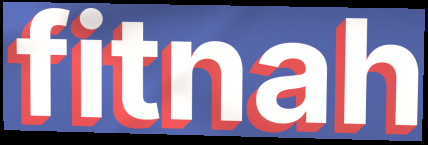
fitnah